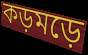
কড়মড়ে